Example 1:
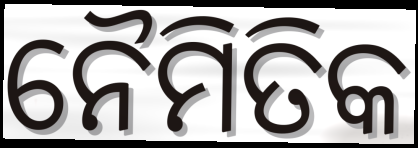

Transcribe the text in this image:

ନୈମିତିକ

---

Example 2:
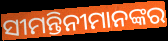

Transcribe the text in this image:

ସୀମନ୍ତିନୀମାନଙ୍କର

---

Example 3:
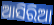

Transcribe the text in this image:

ଆସିରିଆ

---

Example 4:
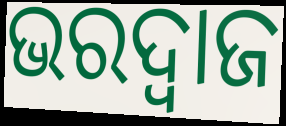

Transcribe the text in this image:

ଭରଦ୍ଵାଜ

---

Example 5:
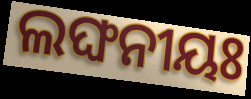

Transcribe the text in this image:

ଲଙ୍ଘନୀୟଃ